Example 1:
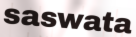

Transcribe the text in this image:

saswata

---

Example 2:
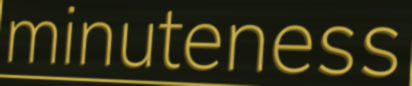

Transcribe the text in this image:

minuteness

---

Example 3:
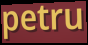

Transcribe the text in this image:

petru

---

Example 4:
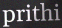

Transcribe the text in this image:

prithi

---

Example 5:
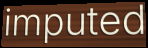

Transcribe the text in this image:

imputed